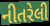
નીતરેલી